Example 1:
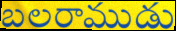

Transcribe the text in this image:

బలరాముడు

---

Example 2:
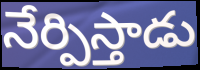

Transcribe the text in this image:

నేర్పిస్తాడు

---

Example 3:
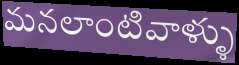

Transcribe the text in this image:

మనలాంటివాళ్ళు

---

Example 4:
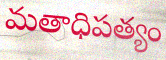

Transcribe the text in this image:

మతాధిపత్యం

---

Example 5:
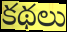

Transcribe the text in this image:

కథలు